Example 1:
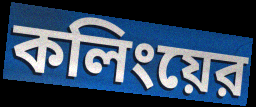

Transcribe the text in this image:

কলিংয়ের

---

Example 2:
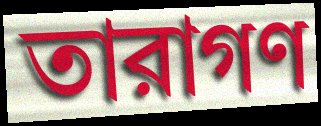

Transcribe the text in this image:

তারাগণ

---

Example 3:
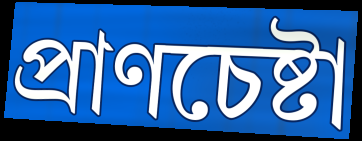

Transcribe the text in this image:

প্রাণচেষ্টা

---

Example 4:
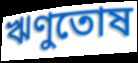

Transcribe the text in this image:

ঋণুতোষ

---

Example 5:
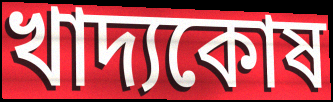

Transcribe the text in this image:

খাদ্যকোষ